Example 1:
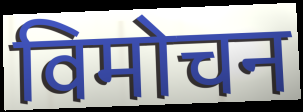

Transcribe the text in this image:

विमोचन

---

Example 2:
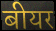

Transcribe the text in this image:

बीयर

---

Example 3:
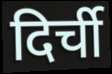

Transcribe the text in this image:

दिर्ची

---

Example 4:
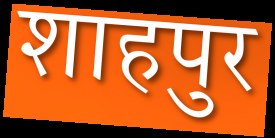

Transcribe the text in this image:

शाहपुर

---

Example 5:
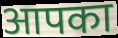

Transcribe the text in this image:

आपका